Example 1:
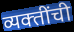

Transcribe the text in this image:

व्यक्‍तींची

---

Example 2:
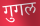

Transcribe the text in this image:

गुगल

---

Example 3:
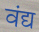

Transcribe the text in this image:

वंद्य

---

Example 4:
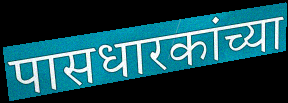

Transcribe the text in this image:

पासधारकांच्या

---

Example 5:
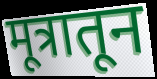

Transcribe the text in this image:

मूत्रातून